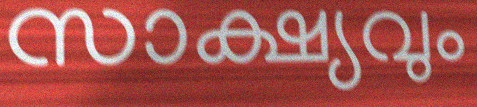
സാക്ഷ്യവും